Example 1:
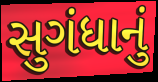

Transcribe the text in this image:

સુગંધાનું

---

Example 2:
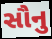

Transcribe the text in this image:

સૌનુ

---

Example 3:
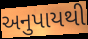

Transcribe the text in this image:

અનુપાયથી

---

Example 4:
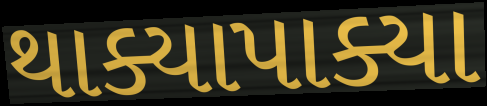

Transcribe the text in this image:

થાક્યાપાક્યા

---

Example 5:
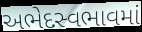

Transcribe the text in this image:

અભેદસ્વભાવમાં